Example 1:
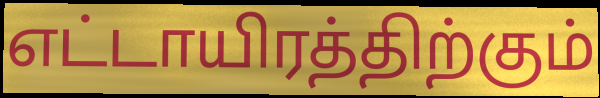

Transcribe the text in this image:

எட்டாயிரத்திற்கும்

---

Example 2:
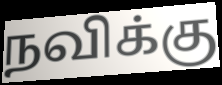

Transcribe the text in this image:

நவிக்கு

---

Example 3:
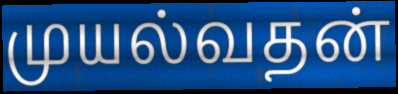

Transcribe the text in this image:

முயல்வதன்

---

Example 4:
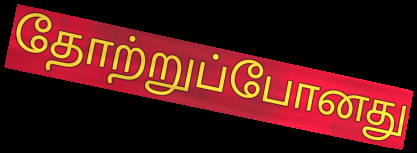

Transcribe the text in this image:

தோற்றுப்போனது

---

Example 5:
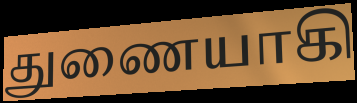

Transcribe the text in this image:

துணையாகி